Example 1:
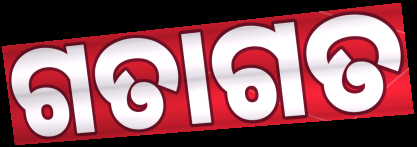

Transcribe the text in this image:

ଗତାଗତ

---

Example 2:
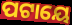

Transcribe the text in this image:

ପଟାୟେ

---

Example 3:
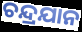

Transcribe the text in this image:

ଚନ୍ଦ୍ରଯାନ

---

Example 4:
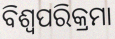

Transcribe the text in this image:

ବିଶ୍ୱପରିକ୍ରମା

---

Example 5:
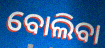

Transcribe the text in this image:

ବୋଲିବା